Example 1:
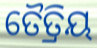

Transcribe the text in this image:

ତୈତ୍ରିୟ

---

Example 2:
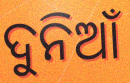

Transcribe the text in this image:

ଦୁନିଆଁ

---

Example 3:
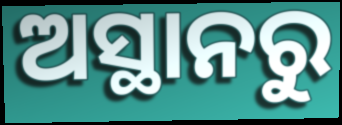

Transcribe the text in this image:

ଅସ୍ଥାନରୁ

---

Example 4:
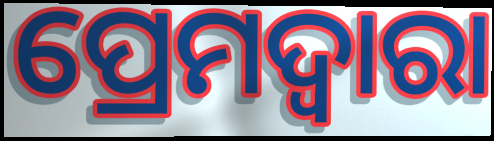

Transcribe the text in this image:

ପ୍ରେମଦ୍ୱାରା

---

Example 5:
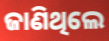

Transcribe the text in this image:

ଜାଣିଥିଲେ